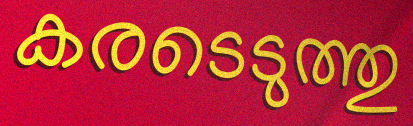
കരടെടുത്തു